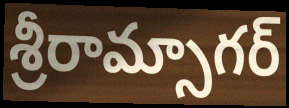
శ్రీరామ్సాగర్